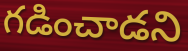
గడించాడని